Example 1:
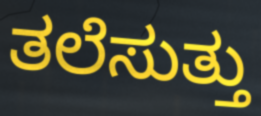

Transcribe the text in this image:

ತಲೆಸುತ್ತು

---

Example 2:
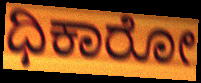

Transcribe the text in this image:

ಧಿಕಾರೋ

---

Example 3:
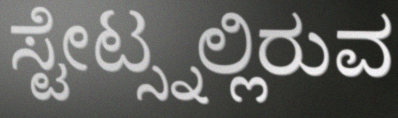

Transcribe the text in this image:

ಸ್ಟೇಟ್ಸ್ನಲ್ಲಿರುವ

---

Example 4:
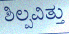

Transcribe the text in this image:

ಶಿಲ್ಪವಿತ್ತು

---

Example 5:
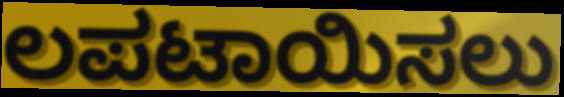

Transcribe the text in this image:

ಲಪಟಾಯಿಸಲು